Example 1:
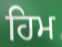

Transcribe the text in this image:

ਹਿਮ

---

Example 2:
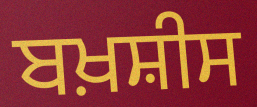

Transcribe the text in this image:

ਬਖ਼ਸ਼ੀਸ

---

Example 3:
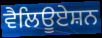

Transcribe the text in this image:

ਵੈਲਿਊਏਸ਼ਨ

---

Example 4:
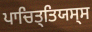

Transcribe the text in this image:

ਪਾਚਿਤ੍ਤਿਯਸ੍ਸ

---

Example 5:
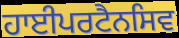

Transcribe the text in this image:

ਹਾਈਪਰਟੈਨਸਿਵ